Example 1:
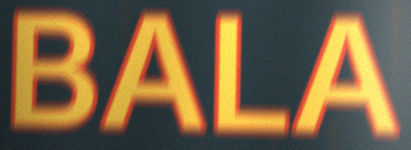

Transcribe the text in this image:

BALA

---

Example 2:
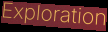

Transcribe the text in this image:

Exploration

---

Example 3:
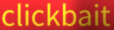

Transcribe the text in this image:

clickbait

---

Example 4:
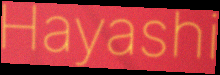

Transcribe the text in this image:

Hayashi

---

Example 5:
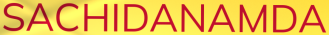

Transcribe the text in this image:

SACHIDANAMDA